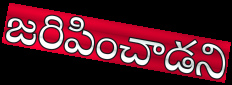
జరిపించాడని